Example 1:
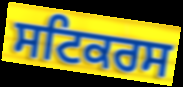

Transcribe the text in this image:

ਸਟਿਕਰਸ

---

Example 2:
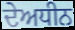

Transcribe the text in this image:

ਦੇਅਧੀਨ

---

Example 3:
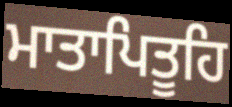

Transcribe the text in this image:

ਮਾਤਾਪਿਤੂਹਿ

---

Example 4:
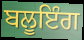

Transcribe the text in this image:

ਬਲੂਇੰਗ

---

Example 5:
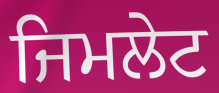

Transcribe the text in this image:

ਜਿਮਲੇਟ